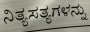
ನಿತ್ಯಸತ್ಯಗಳನ್ನು